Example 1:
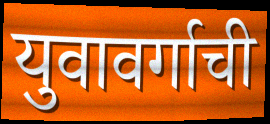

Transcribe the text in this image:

युवावर्गाची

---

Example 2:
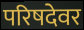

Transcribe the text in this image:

परिषदेवर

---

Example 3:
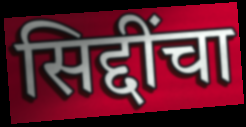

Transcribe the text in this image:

सिद्दींचा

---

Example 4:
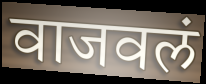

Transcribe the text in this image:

वाजवलं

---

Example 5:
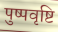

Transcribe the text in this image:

पुष्पवृष्टि